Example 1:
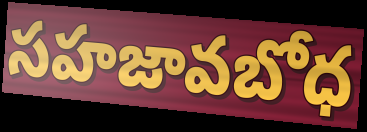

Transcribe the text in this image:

సహజావబోధ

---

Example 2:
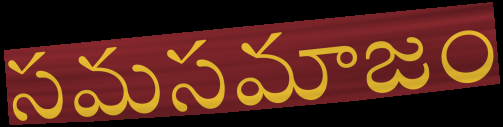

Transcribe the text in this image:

సమసమాజం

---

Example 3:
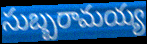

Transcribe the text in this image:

సుబ్బరామయ్య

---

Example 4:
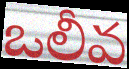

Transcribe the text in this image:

ఒలీవ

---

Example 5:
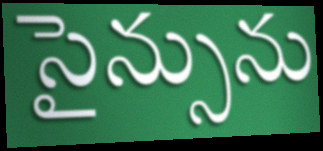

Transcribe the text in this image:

సైన్సును